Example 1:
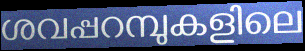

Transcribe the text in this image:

ശവപ്പറമ്പുകളിലെ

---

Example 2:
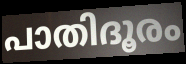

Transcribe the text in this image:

പാതിദൂരം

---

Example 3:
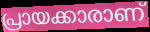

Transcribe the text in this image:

പ്രായക്കാരാണ്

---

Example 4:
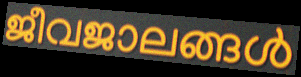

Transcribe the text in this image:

ജീവജാലങ്ങൾ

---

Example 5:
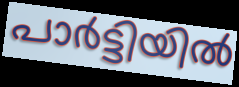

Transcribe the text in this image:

പാർട്ടിയിൽ